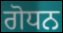
ਗੋਧਨ